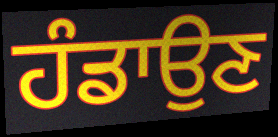
ਹੰਡਾਉਣ